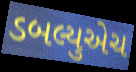
ડબલ્યુએચ